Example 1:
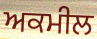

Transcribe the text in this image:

ਅਕਮੀਲ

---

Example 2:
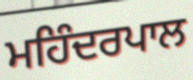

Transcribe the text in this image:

ਮਹਿੰਦਰਪਾਲ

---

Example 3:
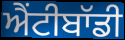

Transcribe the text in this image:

ਐਂਟੀਬਾੱਡੀ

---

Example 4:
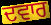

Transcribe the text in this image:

ਦਵਾਰ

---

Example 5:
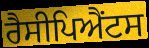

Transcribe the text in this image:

ਰੈਸੀਪਿਐਂਟਸ